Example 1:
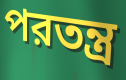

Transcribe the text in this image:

পরতন্ত্র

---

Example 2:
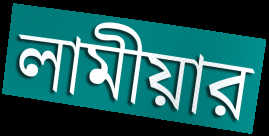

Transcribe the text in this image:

লামীয়ার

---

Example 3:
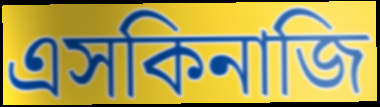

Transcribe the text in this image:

এসকিনাজি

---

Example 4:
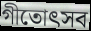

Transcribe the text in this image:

গীতোৎসব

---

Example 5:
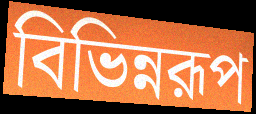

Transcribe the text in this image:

বিভিন্নরূপ